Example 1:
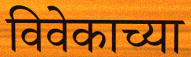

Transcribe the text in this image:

विवेकाच्या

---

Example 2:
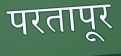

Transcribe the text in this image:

परतापूर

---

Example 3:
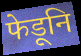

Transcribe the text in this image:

फेडूनि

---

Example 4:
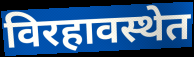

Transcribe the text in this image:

विरहावस्थेत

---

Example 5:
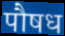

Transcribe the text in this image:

पौषध